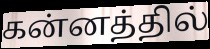
கன்னத்தில்